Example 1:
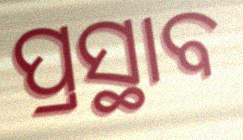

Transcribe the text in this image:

ପ୍ରସ୍ଥାବ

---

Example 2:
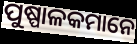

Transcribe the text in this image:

ପୁଷ୍ପାଳକମାନେ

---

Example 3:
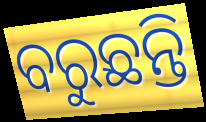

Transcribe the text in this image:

ବରୁଛନ୍ତି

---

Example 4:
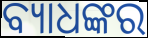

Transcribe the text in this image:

ବ୍ୟାଧଙ୍କର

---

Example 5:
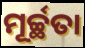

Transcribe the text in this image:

ମୂର୍ଚ୍ଛତା